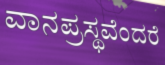
ವಾನಪ್ರಸ್ಥವೆಂದರೆ